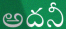
అదనీ